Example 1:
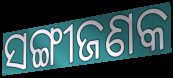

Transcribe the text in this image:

ସଙ୍ଗୀଜଣକ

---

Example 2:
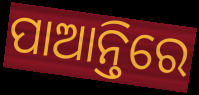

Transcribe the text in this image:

ପାଆନ୍ତିରେ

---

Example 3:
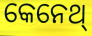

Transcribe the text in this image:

କେନେଥ୍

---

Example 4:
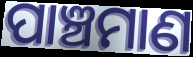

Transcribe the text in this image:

ପାଞ୍ଚମାଣ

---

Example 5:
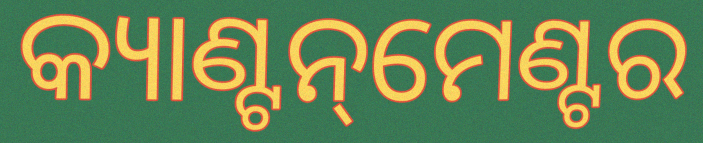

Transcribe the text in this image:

କ୍ୟାଣ୍ଟନ୍‌ମେଣ୍ଟର